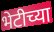
भेटीच्या